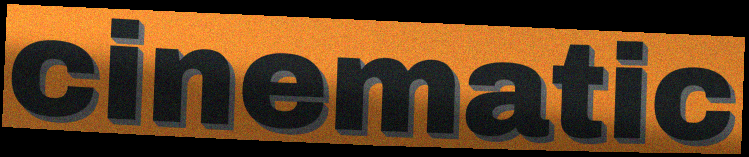
cinematic